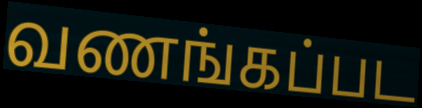
வணங்கப்பட